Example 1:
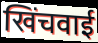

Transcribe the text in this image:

खिंचवाई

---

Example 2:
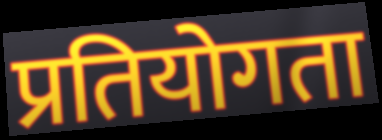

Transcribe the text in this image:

प्रतियोगता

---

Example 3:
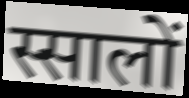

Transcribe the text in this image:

स्सालों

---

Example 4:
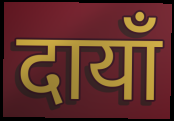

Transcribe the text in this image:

दायाँ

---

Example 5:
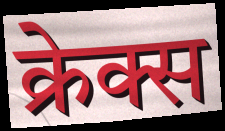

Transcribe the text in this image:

क्रेक्स